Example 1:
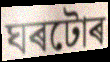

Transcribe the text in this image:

ঘৰটোৰ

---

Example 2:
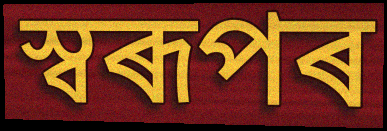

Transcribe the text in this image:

স্বৰূপৰ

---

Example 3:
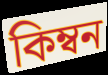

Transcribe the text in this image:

কিম্বন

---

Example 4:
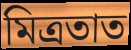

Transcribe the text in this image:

মিত্ৰতাত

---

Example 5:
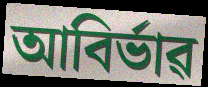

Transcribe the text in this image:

আবিৰ্ভাৱ